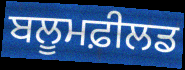
ਬਲੂਮਫ਼ੀਲਡ